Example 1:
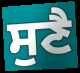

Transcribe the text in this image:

ਸੁਣੈ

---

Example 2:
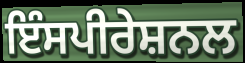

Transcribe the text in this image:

ਇੰਸਪੀਰੇਸ਼ਨਲ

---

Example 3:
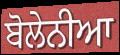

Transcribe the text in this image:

ਬੋਲੇਨੀਆ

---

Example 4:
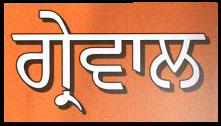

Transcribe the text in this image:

ਗ੍ਰੇਵਾਲ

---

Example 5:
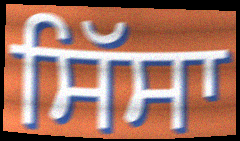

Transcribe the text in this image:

ਸਿੱਸਾ